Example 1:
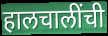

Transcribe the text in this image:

हालचालींची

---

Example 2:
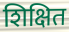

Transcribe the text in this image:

शिक्षित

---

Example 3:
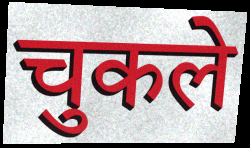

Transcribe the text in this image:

चुकले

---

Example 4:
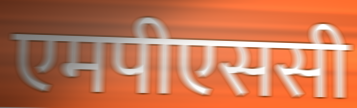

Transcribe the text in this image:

एमपीएससी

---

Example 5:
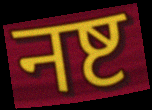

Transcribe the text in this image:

नष्ट